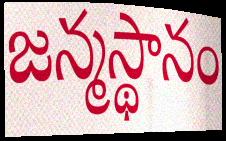
జన్మస్థానం